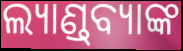
ଲ୍ୟାଣ୍ଡ୍‌ବ୍ୟାଙ୍କ